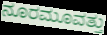
ನೂರಮೂವತ್ತು